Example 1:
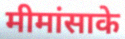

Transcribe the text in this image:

मीमांसाके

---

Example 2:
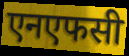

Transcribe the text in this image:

एनएफसी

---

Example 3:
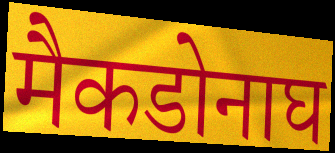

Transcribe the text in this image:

मैकडोनाघ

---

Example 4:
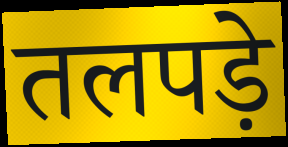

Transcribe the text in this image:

तलपड़े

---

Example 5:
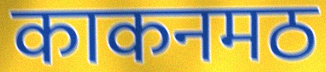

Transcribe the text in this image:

काकनमठ